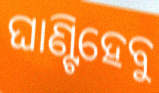
ଘାଣ୍ଟିହେବୁ